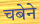
चबेने